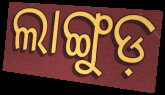
ଲାଙ୍ଗୁଡ଼